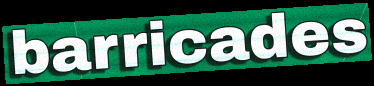
barricades